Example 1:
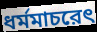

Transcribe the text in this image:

ধর্মমাচরেৎ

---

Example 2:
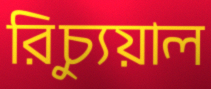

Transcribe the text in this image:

রিচ্যুয়াল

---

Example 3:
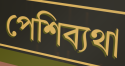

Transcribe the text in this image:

পেশিব্যথা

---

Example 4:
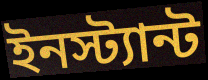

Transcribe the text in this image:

ইনস্ট্যান্ট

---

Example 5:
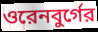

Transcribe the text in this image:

ওরেনবুর্গের